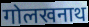
गोलखनाथ